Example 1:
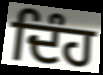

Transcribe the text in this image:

ਦਿੰਹ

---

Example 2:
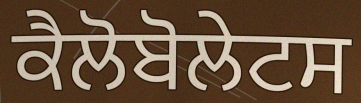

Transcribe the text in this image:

ਕੈਲੋਬੋਲੇਟਸ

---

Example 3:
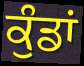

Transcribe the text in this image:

ਕੁੰਡਾਂ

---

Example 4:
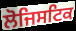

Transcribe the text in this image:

ਲੋਜਿਸਟਿਕ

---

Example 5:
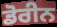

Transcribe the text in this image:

ਡੋਰੀਨ